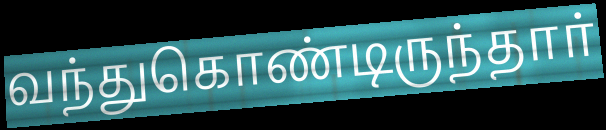
வந்துகொண்டிருந்தார்